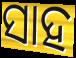
ସାହ